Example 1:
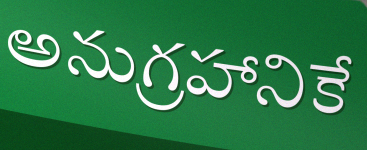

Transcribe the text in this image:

అనుగ్రహానికే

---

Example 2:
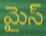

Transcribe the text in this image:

మైస్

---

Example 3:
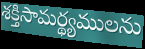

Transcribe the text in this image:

శక్తిసామర్థ్యములను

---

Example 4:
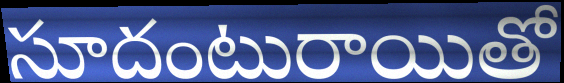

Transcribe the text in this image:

సూదంటురాయితో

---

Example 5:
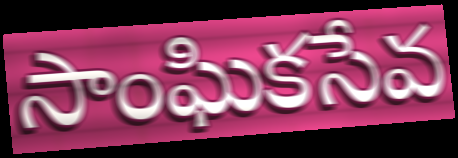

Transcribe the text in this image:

సాంఘికసేవ